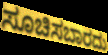
ಸೂಚಿಸಬಾರದು